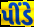
પીંડે